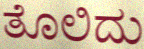
ತೊಲಿದು